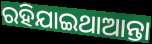
ରହିଯାଇଥାଆନ୍ତା